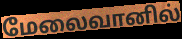
மேலைவானில்